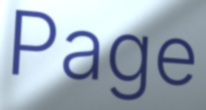
Page